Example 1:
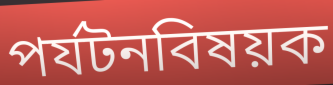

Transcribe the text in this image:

পর্যটনবিষয়ক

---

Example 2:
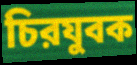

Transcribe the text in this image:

চিরযুবক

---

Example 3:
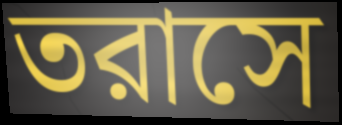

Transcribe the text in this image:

তরাসে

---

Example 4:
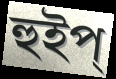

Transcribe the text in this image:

হুইপ্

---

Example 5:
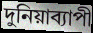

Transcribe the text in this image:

দুনিয়াব্যাপী